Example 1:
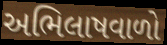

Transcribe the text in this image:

અભિલાષવાળો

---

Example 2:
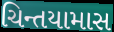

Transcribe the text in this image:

ચિન્તયામાસ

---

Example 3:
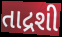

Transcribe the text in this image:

તાદ્રશી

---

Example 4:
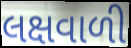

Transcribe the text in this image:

લક્ષવાળી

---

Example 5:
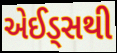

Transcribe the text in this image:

એઈડ્સથી